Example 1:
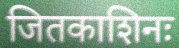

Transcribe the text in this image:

जितकाशिनः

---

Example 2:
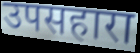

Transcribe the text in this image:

उपसहारा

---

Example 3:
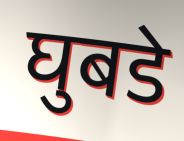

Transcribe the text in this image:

घुबडे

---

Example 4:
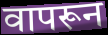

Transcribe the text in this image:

वापरून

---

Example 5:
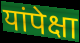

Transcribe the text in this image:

यांपेक्षा